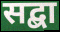
सद्बा